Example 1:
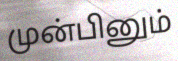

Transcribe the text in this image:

முன்பினும்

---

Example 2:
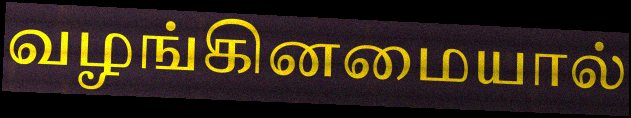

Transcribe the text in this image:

வழங்கினமையால்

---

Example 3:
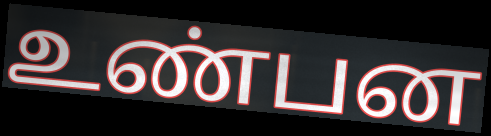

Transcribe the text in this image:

உண்பன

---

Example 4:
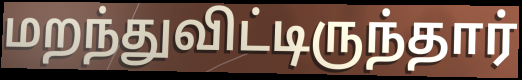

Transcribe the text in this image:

மறந்துவிட்டிருந்தார்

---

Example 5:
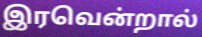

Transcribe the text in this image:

இரவென்றால்